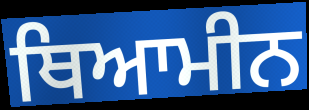
ਥਿਆਮੀਨ